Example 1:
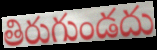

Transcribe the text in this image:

తిరుగుండదు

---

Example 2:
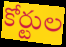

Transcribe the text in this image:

కోర్టుల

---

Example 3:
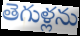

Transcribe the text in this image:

తెగుళ్లను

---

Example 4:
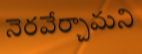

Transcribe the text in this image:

నెరవేర్చామని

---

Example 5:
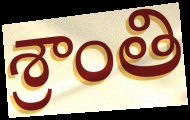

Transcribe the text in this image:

శ్రాంతి